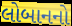
લોબાનનો